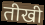
तीखी